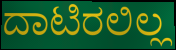
ದಾಟಿರಲಿಲ್ಲ